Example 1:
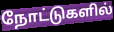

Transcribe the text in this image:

நோட்டுகளில்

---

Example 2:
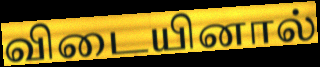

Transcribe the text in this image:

விடையினால்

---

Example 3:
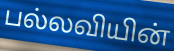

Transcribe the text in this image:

பல்லவியின்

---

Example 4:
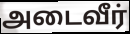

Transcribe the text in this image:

அடைவீர்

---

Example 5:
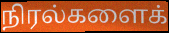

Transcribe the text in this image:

நிரல்களைக்